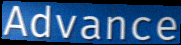
Advance